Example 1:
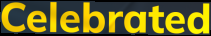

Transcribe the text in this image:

Celebrated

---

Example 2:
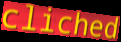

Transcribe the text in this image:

cliched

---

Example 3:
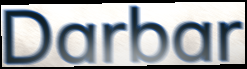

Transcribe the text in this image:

Darbar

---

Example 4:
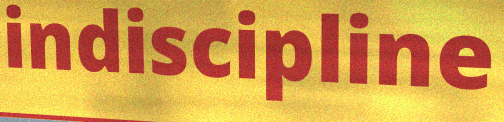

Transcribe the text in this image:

indiscipline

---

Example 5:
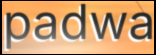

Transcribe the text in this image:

padwa